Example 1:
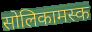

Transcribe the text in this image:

सोलिकामस्क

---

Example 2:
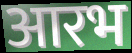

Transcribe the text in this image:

आरभ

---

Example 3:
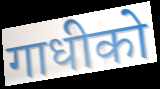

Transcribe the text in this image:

गाधीको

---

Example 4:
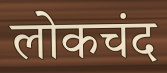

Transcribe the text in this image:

लोकचंद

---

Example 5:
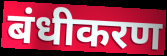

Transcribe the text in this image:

बंधीकरण